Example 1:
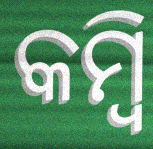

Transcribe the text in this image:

କମ୍ବି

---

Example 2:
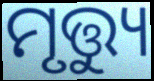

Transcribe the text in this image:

ମୃତ୍ତ୍ୟୁ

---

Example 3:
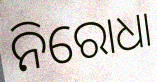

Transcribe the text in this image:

ନିରୋଧା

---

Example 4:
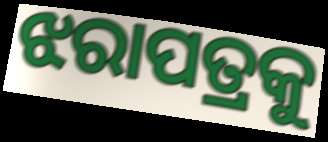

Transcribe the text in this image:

ଝରାପତ୍ରକୁ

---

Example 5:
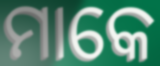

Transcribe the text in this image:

ମାକେ